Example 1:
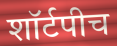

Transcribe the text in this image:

शॉर्टपीच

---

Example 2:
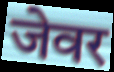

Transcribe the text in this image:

जेवर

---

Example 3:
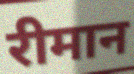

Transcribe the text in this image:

रीमान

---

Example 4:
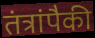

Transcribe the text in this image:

तंत्रांपैकी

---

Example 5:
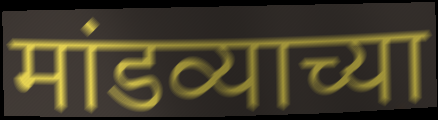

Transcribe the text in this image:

मांडव्याच्या